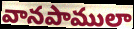
వానపాములా